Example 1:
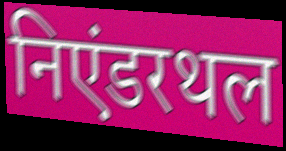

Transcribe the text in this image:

निएंडरथल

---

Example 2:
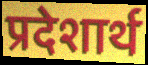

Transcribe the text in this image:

प्रदेशार्थ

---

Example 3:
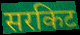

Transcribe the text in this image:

सरकिट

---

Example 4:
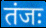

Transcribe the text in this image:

तंजः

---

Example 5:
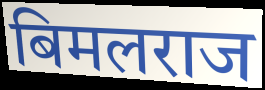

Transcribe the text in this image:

बिमलराज